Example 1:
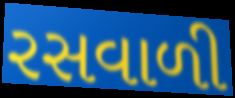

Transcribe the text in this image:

રસવાળી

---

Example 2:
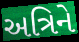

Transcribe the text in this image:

અત્રિને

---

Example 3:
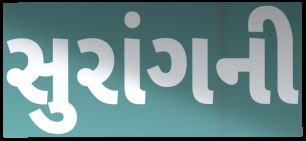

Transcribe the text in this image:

સુરાંગની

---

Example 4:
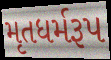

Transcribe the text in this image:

મૃતધર્મરૂપ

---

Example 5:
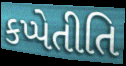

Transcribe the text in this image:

કપ્પેતીતિ